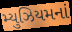
મ્યુઝિયમનાં